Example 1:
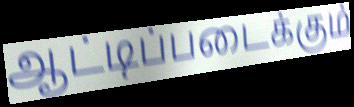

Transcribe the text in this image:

ஆட்டிப்படைக்கும்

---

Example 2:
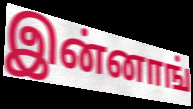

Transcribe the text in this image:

இன்னாங்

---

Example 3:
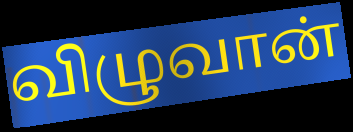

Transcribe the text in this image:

விழுவான்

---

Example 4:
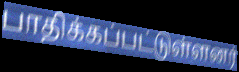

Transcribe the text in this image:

பாதிக்கப்பட்டுள்ளனர்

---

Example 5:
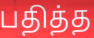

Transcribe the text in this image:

பதித்த